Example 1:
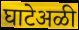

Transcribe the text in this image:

घाटेअळी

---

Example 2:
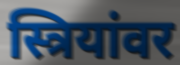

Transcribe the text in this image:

स्त्रियांवर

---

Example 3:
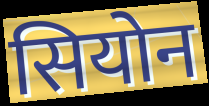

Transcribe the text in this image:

सियोन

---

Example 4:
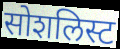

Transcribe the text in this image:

सोशलिस्ट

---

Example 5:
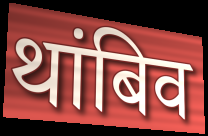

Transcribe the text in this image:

थांबिव